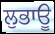
ਲੁਭਾਊ